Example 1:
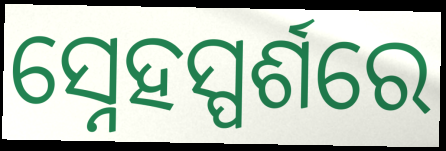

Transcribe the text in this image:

ସ୍ନେହସ୍ପର୍ଶରେ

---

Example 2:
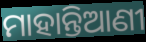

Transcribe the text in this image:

ମାହାନ୍ତିଆଣୀ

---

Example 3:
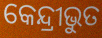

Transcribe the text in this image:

କେନ୍ଦ୍ରୀଭୁତ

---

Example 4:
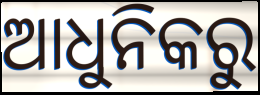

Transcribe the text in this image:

ଆଧୁନିକରୁ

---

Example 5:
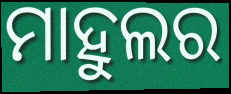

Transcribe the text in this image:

ମାହୁଲର